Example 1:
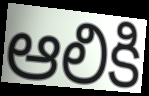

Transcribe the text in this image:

ఆలికి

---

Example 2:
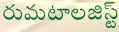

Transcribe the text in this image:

రుమటాలజిస్ట్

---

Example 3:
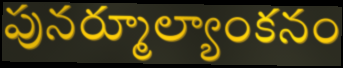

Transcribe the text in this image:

పునర్మూల్యాంకనం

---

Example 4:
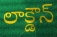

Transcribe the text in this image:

లాక్డౌన్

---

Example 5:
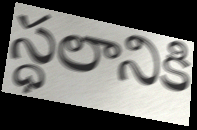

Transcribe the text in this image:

స్ధలానికి